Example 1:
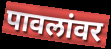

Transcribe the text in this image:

पावलांवर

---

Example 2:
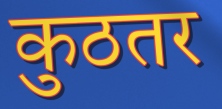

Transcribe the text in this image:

कुठतर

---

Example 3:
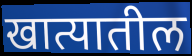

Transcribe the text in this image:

खात्यातील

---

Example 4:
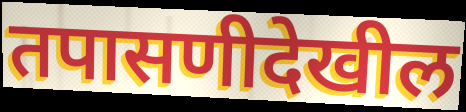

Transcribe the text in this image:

तपासणीदेखील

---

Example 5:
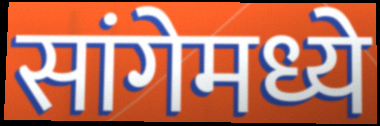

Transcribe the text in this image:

सांगेमध्ये